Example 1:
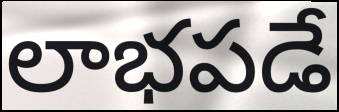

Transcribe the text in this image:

లాభపడే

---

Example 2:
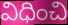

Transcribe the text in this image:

విధించి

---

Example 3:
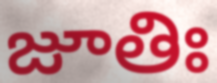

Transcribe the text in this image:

జూతిః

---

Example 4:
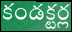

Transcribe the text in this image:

కండక్టర్ల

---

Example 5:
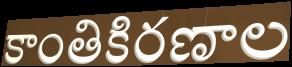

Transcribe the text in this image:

కాంతికిరణాల